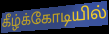
கீழ்க்கோடியில்